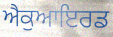
ਐਕੁਆਇਰਡ